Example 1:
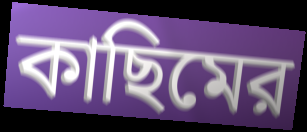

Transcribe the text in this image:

কাছিমের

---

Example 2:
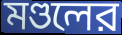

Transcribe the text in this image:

মণ্ডলের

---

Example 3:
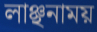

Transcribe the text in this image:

লাঞ্ছনাময়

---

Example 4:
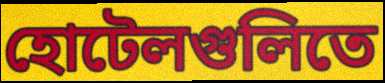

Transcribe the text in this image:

হোটেলগুলিতে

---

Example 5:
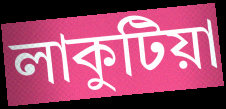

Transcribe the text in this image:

লাকুটিয়া